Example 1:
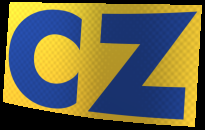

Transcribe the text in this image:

cz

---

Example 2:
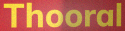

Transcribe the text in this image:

Thooral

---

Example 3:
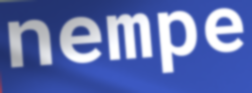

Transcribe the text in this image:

nempe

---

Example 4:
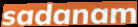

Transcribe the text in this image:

sadanam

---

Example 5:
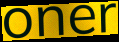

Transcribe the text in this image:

oner